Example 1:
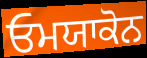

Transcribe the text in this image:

ਓਮਯਾਕੋਨ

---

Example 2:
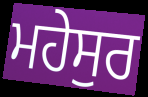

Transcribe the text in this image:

ਮਹੇਸੁਰ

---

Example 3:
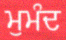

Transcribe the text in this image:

ਮੁਮੰਦ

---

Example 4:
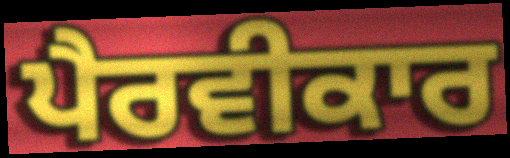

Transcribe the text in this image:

ਪੈਰਵੀਕਾਰ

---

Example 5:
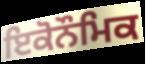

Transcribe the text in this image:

ਇਕੋਨੌਮਿਕ